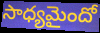
సాధ్యమైందో